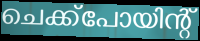
ചെക്ക്പോയിന്റ്